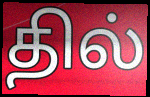
தில்